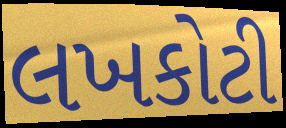
લખકોટી